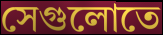
সেগুলোতে